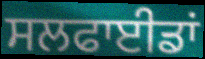
ਸਲਫਾਈਡਾਂ